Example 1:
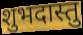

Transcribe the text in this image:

शुभदास्तु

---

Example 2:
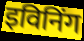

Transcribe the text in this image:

इविनिंग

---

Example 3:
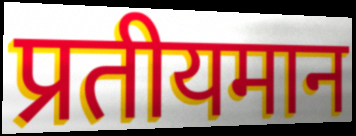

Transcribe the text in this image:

प्रतीयमान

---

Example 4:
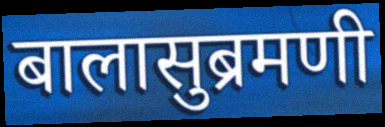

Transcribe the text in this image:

बालासुब्रमणी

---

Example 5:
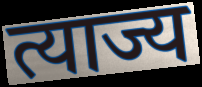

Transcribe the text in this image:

त्याज्य